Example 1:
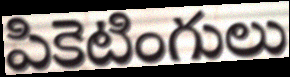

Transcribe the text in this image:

పికెటింగులు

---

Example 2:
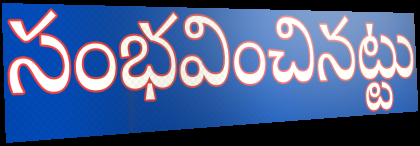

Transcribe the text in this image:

సంభవించినట్టు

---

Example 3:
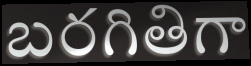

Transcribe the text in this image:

బరగితిగా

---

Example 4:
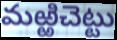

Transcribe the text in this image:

మఱ్ఱిచెట్టు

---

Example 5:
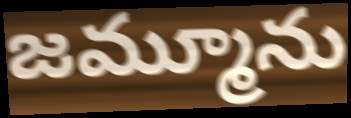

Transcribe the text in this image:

జమ్మూను